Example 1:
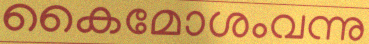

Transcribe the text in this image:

കൈമോശംവന്നു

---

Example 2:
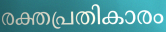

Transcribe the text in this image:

രക്തപ്രതികാരം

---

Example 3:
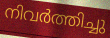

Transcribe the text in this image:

നിവർത്തിച്ചു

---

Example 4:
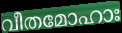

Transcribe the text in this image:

വീതമോഹാഃ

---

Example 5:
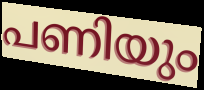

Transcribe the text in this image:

പണിയും